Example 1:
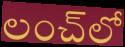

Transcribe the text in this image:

లంచ్‌లో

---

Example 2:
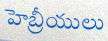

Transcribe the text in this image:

హెబ్రీయులు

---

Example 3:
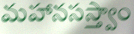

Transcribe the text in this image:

మహానసస్త్వాం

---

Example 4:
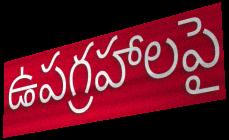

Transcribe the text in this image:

ఉపగ్రహాలపై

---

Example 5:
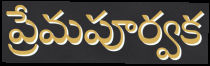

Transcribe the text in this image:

ప్రేమపూర్వక